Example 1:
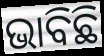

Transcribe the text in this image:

ଭାବିଛି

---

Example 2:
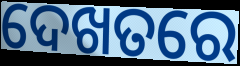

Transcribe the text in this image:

ଦେଖତରେ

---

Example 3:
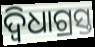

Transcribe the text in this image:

ଦ୍ୱିଧାଗ୍ରସ୍ତ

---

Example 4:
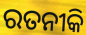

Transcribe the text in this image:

ରତନୀକି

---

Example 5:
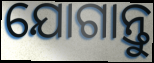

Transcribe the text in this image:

ଯୋଗାନ୍ତୁ